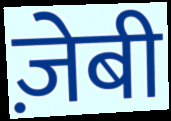
ज़ेबी